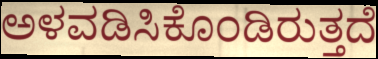
ಅಳವಡಿಸಿಕೊಂಡಿರುತ್ತದೆ